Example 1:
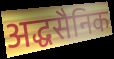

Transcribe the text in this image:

अद्धसैनिक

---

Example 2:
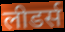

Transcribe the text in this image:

लीडर्स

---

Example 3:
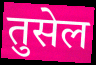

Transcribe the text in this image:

तुसेल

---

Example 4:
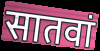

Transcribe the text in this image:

सातवां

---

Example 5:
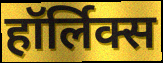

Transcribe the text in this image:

हॉर्लिक्स